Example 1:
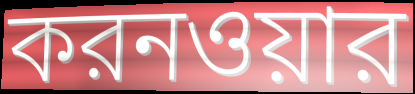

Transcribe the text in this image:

করনওয়ার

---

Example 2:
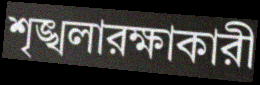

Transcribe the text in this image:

শৃঙ্খলারক্ষাকারী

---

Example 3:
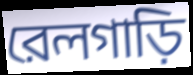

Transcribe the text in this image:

রেলগাড়ি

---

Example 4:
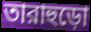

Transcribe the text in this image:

তারাহুড়ো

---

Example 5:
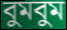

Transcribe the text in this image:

বুমবুম